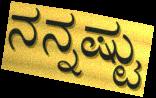
ನನ್ನಷ್ಟು